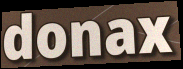
donax